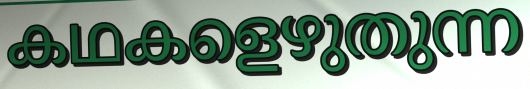
കഥകളെഴുതുന്ന